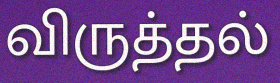
விருத்தல்